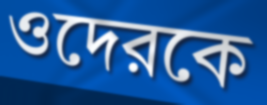
ওদেরকে